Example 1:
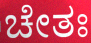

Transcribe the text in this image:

ಚೇತಃ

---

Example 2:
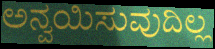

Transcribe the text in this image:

ಅನ್ವಯಿಸುವುದಿಲ್ಲ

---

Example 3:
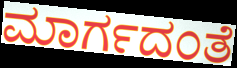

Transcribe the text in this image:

ಮಾರ್ಗದಂತೆ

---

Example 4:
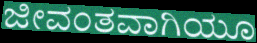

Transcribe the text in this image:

ಜೀವಂತವಾಗಿಯೂ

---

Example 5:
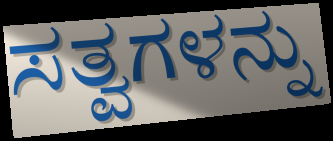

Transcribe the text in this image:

ಸತ್ವಗಳನ್ನು